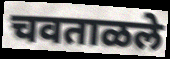
चवताळले